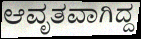
ಆವೃತವಾಗಿದ್ದ